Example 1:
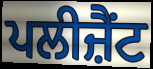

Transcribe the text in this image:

ਪਲੀਜ਼ੈਂਟ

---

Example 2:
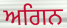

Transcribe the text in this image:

ਅਗਿਨ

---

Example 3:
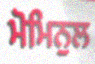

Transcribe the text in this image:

ਮੋਮਿਨੁਲ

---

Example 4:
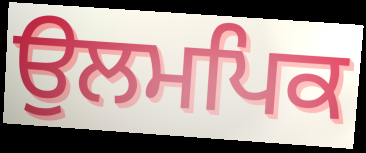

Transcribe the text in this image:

ਉਲਮਪਿਕ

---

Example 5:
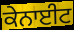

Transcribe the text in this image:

ਕੇਨਾਈਟ